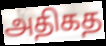
அதிகத